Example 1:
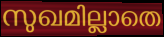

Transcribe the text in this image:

സുഖമില്ലാതെ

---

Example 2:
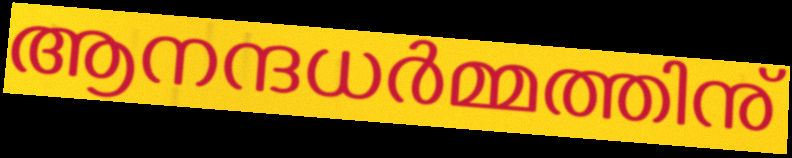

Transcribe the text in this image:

ആനന്ദധർമ്മത്തിനു്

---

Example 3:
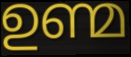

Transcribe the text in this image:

ഉണ്മ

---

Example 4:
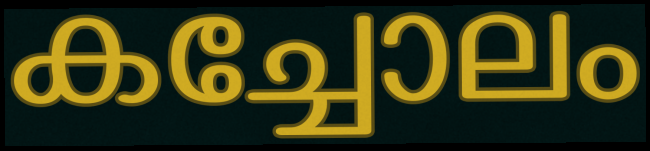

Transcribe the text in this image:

കച്ചോലം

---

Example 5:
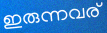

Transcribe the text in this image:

ഇരുന്നവര്